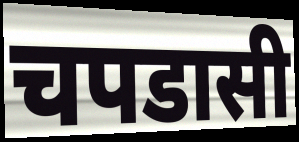
चपडासी